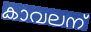
കാവലന്